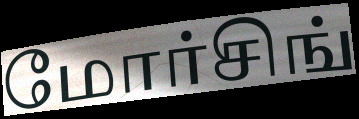
மோர்சிங்